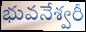
భువనేశ్వరీ